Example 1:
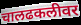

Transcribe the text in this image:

चालढकलीवर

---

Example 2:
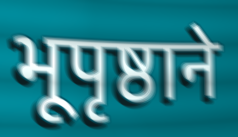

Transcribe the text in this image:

भूपृष्ठाने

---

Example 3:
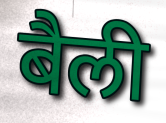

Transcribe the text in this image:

बैली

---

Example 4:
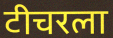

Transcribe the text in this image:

टीचरला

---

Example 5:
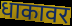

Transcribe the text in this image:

धाकावर